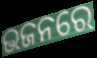
ଭଜନରେ